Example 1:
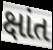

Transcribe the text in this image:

ક્ષાંત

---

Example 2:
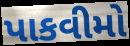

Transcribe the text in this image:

પાકવીમો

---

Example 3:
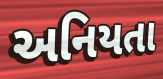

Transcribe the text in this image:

અનિયતા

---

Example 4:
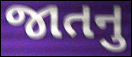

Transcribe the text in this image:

જાતનુ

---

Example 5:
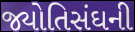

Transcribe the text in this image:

જ્યોતિસંઘની